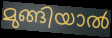
മുങ്ങിയാൽ